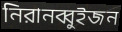
নিরানব্বুইজন